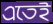
এতেই